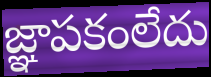
జ్ఞాపకంలేదు